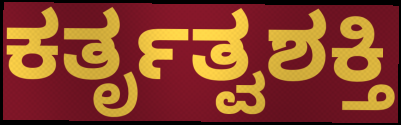
ಕರ್ತೃತ್ವಶಕ್ತಿ